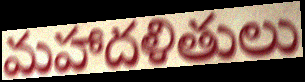
మహాదళితులు